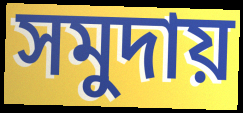
সমুদায়